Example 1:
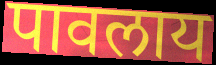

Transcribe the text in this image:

पावलाय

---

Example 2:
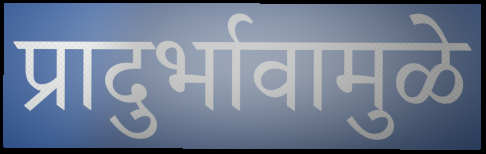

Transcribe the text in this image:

प्रादुर्भावामुळे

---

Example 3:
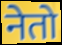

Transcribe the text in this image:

नेतो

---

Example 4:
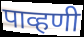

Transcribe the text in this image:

पाव्हणी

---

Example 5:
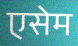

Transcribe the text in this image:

एसेम